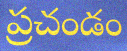
ప్రచండం